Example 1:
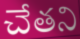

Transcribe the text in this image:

చేతని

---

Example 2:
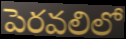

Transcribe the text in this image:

పెరవలిలో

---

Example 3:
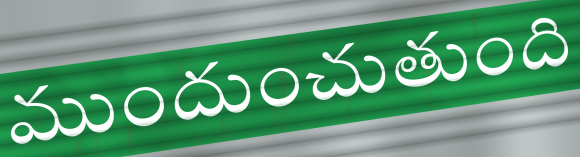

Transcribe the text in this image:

ముందుంచుతుంది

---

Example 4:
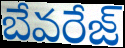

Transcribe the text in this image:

బేవరేజ్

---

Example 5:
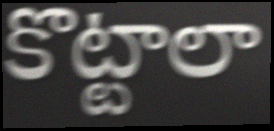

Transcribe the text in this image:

కొట్టాలా